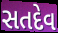
સતદેવ